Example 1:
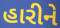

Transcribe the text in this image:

હારીને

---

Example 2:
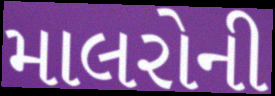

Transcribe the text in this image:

માલરોની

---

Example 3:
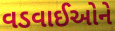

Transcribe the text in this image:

વડવાઈઓને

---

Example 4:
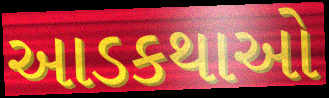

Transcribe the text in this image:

આડકથાઓ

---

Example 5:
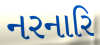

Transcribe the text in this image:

નરનારિ